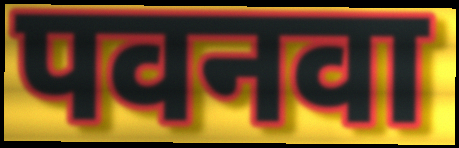
पवनवा